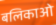
बलिकाओ